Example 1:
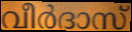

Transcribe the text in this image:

വീർദാസ്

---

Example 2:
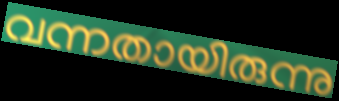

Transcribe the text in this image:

വന്നതായിരുന്നു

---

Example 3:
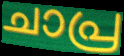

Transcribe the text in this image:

ചാപ്ര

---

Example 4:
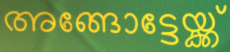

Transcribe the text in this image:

അങ്ങോട്ടേയ്ക്ക്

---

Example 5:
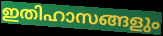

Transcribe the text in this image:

ഇതിഹാസങ്ങളും